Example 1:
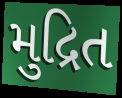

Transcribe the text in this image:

મુદ્રિત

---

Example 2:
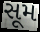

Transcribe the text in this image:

સૂમ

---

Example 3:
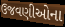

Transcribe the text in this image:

ઉજવણીઓના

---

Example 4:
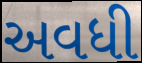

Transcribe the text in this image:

અવધી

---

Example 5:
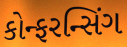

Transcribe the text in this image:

કોન્ફરન્સિંગ